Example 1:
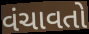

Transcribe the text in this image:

વંચાવતો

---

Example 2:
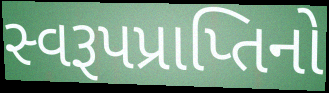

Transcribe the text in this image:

સ્વરૂપપ્રાપ્તિનો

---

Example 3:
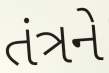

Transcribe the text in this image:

તંત્રને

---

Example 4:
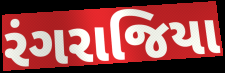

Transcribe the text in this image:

રંગરાજિયા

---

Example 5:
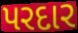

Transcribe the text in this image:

પરદાર